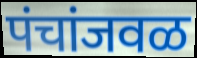
पंचांजवळ